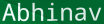
Abhinav